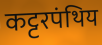
कट्टरपंथिय